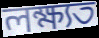
লক্ষ্যত